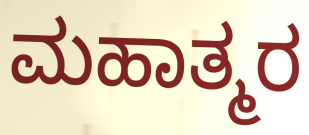
ಮಹಾತ್ಮರ